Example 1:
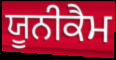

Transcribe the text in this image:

ਯੂਨੀਕੈਮ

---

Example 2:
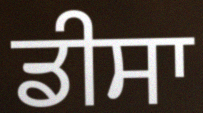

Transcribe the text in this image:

ਡੀਸਾ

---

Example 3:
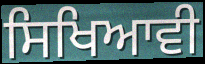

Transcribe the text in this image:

ਸਿਖਿਆਵੀ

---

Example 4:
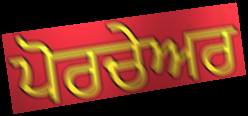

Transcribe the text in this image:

ਪੋਰਚੇਅਰ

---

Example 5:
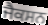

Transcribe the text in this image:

ਜੈਕਸਨ